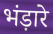
भंड़ारे